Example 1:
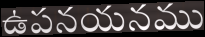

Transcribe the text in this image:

ఉపనయనము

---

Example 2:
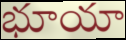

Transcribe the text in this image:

భూయా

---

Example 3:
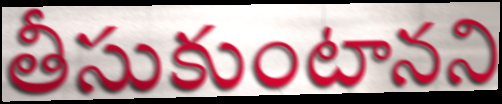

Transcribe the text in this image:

తీసుకుంటానని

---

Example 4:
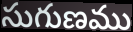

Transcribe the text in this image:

సుగుణము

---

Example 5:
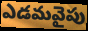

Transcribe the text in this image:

ఎడమవైపు